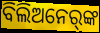
ବିଲିଅନେର୍‌ଙ୍କ